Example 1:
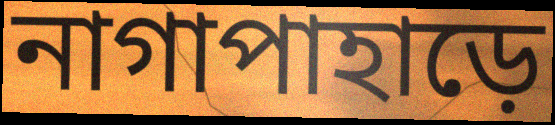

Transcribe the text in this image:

নাগাপাহাড়ে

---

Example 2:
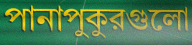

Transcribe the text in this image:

পানাপুকুরগুলো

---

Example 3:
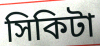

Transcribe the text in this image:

সিকিটা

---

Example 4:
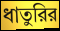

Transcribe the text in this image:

ধাতুরির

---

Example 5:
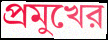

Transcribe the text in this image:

প্রমুখের